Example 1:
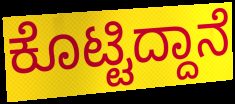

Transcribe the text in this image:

ಕೊಟ್ಟಿದ್ದಾನೆ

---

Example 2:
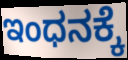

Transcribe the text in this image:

ಇಂಧನಕ್ಕೆ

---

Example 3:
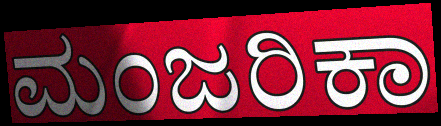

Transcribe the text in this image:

ಮಂಜರಿಕಾ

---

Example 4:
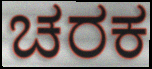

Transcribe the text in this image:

ಚರಕ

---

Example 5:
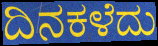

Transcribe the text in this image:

ದಿನಕಳೆದು